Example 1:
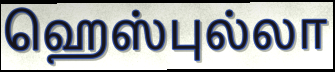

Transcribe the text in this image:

ஹெஸ்புல்லா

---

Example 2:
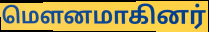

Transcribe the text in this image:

மௌனமாகினர்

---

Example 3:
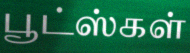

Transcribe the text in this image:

பூட்ஸ்கள்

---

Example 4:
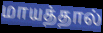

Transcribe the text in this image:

மாயத்தால்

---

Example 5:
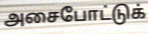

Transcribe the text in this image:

அசைபோட்டுக்